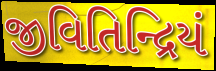
જીવિતિન્દ્રિયં